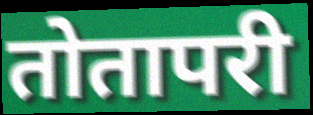
तोतापरी